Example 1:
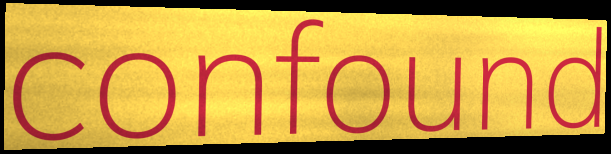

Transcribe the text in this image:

confound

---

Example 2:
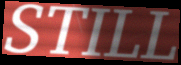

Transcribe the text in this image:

STILL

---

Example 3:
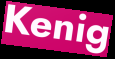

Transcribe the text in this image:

Kenig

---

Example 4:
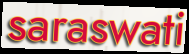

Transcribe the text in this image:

saraswati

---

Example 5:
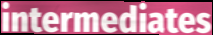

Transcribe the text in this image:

intermediates